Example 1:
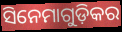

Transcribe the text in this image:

ସିନେମାଗୁଡ଼ିକର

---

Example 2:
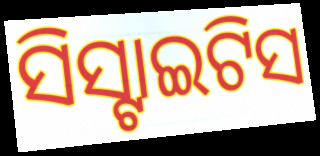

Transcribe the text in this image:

ସିସ୍ଟାଇଟିସ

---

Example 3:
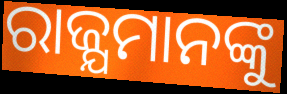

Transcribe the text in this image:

ରାଜ୍ଯମାନଙ୍କୁ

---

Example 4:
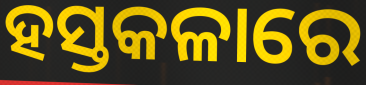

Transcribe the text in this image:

ହସ୍ତକଳାରେ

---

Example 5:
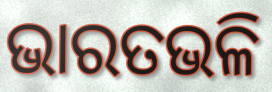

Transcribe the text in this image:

ଭାରତଭଳି